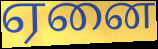
ஏனை